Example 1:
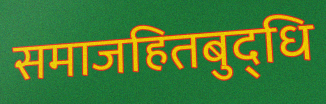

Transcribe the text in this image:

समाजहितबुद्धि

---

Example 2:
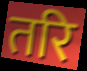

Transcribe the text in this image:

तरि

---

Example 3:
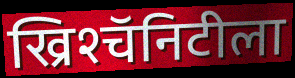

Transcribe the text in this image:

ख्रिश्चॅनिटीला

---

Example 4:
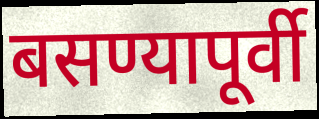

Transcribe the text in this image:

बसण्यापूर्वी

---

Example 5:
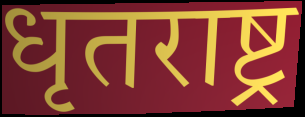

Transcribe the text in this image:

धृतराष्ट्र